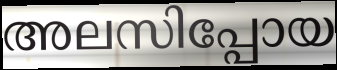
അലസിപ്പോയ